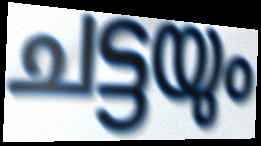
ചട്ടയും